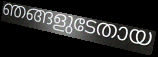
ഞങ്ങളുടേതായ